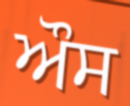
ਔਸ